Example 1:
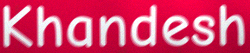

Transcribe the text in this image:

Khandesh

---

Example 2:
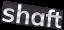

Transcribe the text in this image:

shaft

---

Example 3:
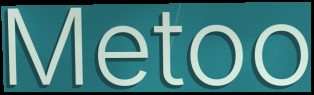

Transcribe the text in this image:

Metoo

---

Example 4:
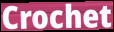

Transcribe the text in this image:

Crochet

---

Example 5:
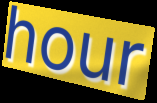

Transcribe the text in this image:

hour